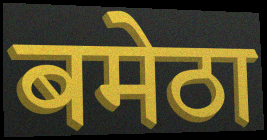
बमेठा